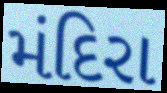
મંદિરા